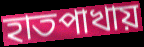
হাতপাখায়